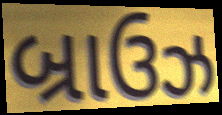
બ્રાઉઝ